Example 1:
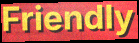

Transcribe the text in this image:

Friendly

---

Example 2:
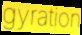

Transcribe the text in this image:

gyration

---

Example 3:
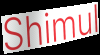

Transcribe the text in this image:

Shimul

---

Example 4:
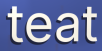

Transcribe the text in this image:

teat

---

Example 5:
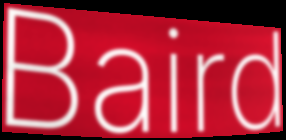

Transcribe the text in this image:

Baird